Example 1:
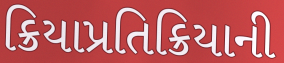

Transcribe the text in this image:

ક્રિયાપ્રતિક્રિયાની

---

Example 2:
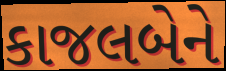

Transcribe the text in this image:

કાજલબેને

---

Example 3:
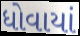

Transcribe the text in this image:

ધોવાયાં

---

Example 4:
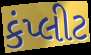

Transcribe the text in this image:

કંપ્લીટ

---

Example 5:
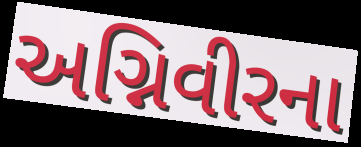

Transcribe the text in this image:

અગ્નિવીરના